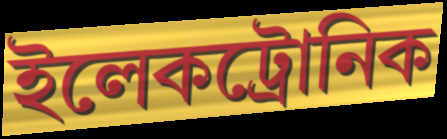
ইলেকট্রোনিক